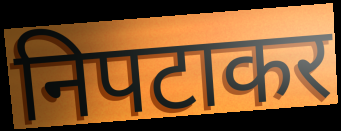
निपटाकर